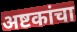
अष्टकांचा